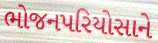
ભોજનપરિયોસાને